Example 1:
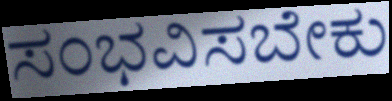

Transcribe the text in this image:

ಸಂಭವಿಸಬೇಕು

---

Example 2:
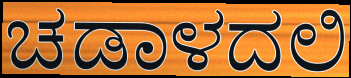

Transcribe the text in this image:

ಚಡಾಳದಲಿ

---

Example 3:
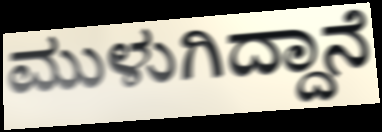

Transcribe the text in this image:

ಮುಳುಗಿದ್ದಾನೆ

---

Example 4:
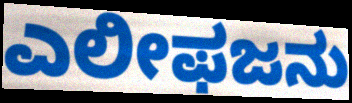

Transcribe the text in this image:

ಎಲೀಫಜನು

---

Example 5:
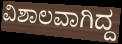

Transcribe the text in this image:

ವಿಶಾಲವಾಗಿದ್ದ